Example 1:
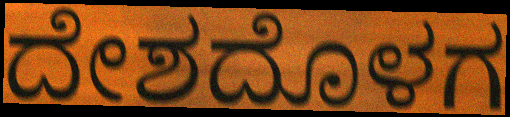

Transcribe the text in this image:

ದೇಶದೊಳಗ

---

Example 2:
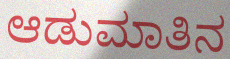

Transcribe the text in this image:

ಆಡುಮಾತಿನ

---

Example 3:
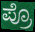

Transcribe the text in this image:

ಪ್ರೊ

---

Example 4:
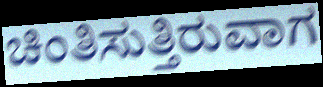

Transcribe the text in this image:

ಚಿಂತಿಸುತ್ತಿರುವಾಗ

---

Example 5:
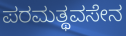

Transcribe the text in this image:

ಪರಮತ್ಥವಸೇನ